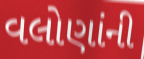
વલોણાંની